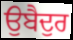
ਉਬੈਦੁਰ